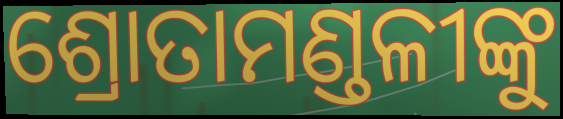
ଶ୍ରୋତାମଣ୍ଡଳୀଙ୍କୁ